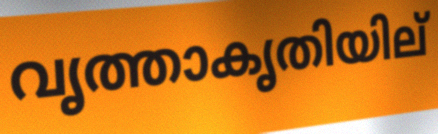
വൃത്താകൃതിയില്